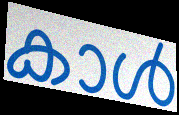
കാൾ